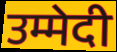
उम्मेदी